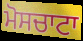
ਮੋਸਚਾਟਾ